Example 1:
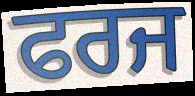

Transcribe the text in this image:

ਫਰਜ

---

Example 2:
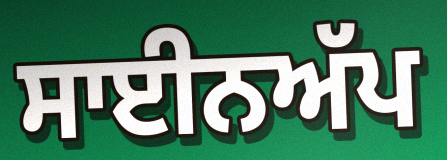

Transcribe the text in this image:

ਸਾਈਨਅੱਪ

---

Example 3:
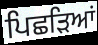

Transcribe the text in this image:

ਪਿਛੜਿਆਂ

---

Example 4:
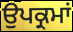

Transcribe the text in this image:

ਉਪਕ੍ਰਮਾਂ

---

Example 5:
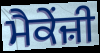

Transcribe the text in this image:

ਮੈਕੇਂਜ਼ੀ